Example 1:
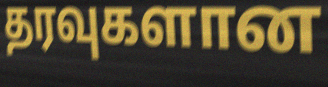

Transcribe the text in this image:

தரவுகளான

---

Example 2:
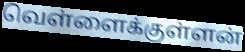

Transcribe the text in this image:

வெள்ளைக்குள்ளன்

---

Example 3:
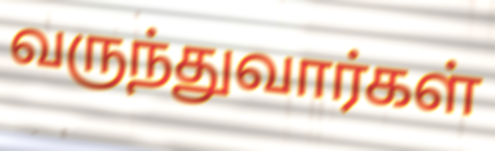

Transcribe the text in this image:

வருந்துவார்கள்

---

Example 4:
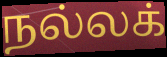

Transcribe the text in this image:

நல்லக்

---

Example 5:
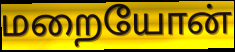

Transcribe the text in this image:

மறையோன்